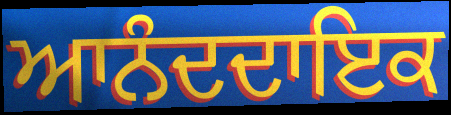
ਆਨੰਦਦਾਇਕ